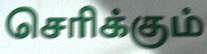
செரிக்கும்